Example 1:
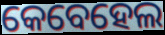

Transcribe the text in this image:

କେବେହେଲ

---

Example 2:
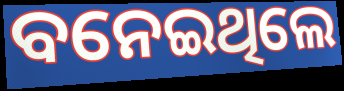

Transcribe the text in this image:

ବନେଇଥିଲେ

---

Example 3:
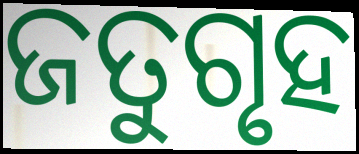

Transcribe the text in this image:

ଜତୁଗୃହ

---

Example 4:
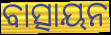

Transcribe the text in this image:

ବାତ୍ସାୟନ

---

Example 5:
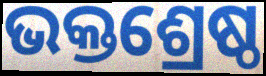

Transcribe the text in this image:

ଭକ୍ତଶ୍ରେଷ୍ଠ